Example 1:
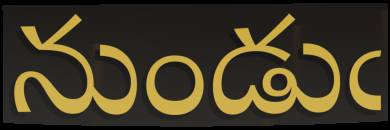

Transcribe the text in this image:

నుండుఁ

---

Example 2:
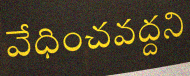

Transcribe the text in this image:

వేధించవద్దని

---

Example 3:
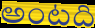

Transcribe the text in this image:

అంటది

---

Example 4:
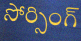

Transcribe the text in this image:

సోర్సింగ్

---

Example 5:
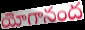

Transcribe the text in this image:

యోగానంద